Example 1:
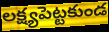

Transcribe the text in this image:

లక్ష్యపెట్టకుండ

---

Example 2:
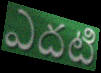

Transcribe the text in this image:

ఎదటి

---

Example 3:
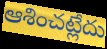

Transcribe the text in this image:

ఆశించట్లేదు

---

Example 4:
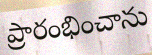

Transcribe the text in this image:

ప్రారంభించాను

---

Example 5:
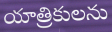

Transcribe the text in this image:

యాత్రికులను